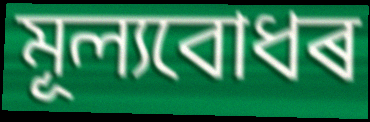
মূল্যবোধৰ